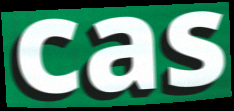
cas